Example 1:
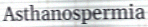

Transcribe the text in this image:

Asthanospermia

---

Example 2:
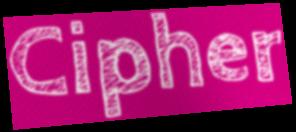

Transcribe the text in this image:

Cipher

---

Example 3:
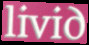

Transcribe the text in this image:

livid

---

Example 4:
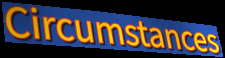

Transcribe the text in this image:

Circumstances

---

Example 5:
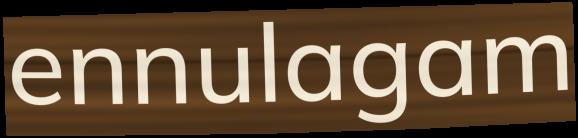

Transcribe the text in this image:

ennulagam